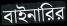
বাইনারির